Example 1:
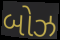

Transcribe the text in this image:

બોઝ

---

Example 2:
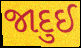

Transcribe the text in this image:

જાદુઈ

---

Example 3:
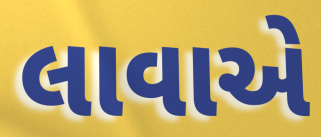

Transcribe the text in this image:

લાવાએ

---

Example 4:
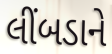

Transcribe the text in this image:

લીંબડાને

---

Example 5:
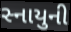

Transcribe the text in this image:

સ્નાયુની